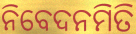
ନିବେଦନମିତି